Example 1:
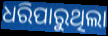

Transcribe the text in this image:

ଧରିପାରୁଥିଲା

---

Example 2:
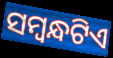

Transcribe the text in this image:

ସମ୍ୱନ୍ଧଟିଏ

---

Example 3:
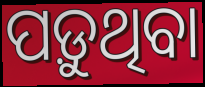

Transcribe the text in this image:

ପଡ଼ୁଥିବା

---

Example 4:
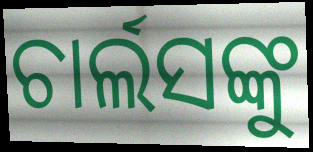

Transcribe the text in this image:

ଚାର୍ଲସଙ୍କୁ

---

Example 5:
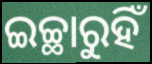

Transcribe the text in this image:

ଇଚ୍ଛାରୁହିଁ